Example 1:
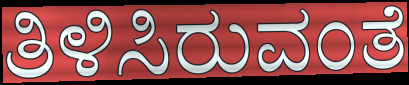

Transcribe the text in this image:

ತಿಳಿಸಿರುವಂತೆ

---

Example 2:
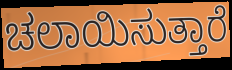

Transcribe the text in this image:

ಚಲಾಯಿಸುತ್ತಾರೆ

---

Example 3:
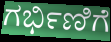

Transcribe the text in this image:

ಗರ್ಭಿಣಿಗೆ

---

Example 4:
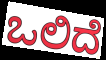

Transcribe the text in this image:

ಒಲಿದೆ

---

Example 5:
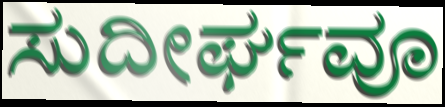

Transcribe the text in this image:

ಸುದೀರ್ಘವೂ